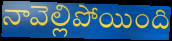
నావెల్లిపోయింది